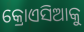
କ୍ରୋଏସିଆକୁ